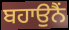
ਬਹਾਉਨੈਂ